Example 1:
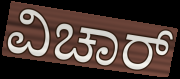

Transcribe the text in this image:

ವಿಚಾರ್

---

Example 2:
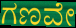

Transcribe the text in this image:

ಗಣವೇ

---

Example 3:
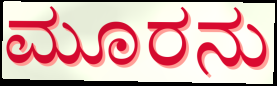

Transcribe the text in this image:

ಮೂರನು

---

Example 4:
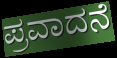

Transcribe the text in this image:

ಪ್ರವಾದನೆ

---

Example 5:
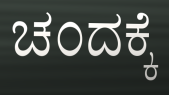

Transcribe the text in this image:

ಚಂದಕ್ಕೆ